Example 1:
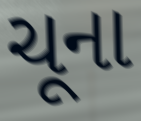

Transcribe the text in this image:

ચૂના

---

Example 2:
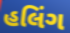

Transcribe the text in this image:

હલિંગ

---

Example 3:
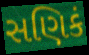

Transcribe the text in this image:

સણિકં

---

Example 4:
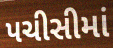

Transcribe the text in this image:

પચીસીમાં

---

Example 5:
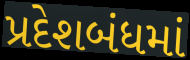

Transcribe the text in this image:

પ્રદેશબંધમાં